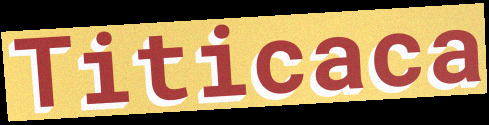
Titicaca